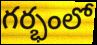
గర్భంలో